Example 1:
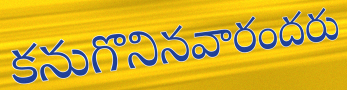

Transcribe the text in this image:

కనుగొనినవారందరు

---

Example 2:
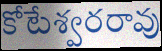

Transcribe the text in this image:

కోటేశ్వరరావు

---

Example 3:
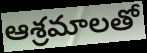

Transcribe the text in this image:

ఆశ్రమాలతో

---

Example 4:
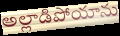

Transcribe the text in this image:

అల్లాడిపోయాను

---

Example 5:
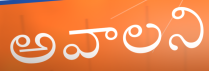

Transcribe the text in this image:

అవాలని